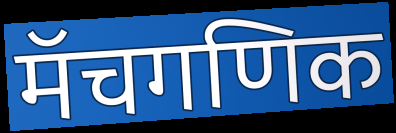
मॅचगणिक